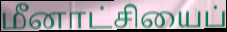
மீனாட்சியைப்